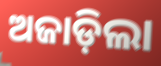
ଅଜାଡ଼ିଲା